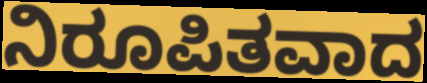
ನಿರೂಪಿತವಾದ